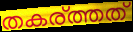
തകര്ത്തത്